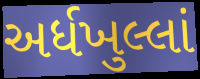
અર્ધખુલ્લાં